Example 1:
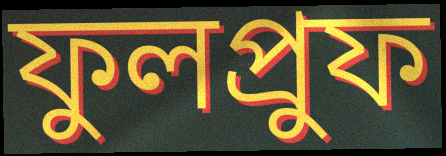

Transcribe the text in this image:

ফুলপ্রুফ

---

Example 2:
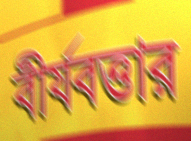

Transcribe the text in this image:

বীর্যবত্তার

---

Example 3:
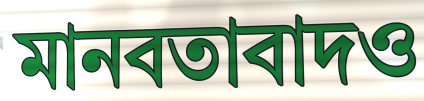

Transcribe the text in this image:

মানবতাবাদও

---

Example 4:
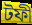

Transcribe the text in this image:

টফী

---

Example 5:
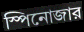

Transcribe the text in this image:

স্পিনোজার